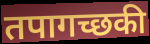
तपागच्छकी